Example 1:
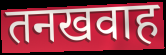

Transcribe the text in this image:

तनखवाह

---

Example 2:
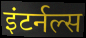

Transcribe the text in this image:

इंटर्नल्स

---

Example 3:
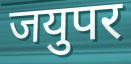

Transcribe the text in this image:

जयुपर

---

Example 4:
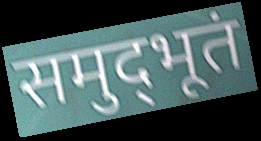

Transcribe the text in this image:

समुद्भूतं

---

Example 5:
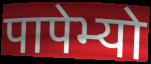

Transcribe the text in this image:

पापेभ्यो